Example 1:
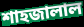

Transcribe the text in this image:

শাহজালাল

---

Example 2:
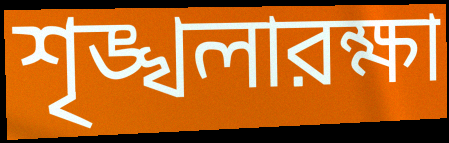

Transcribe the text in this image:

শৃঙ্খলারক্ষা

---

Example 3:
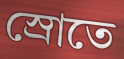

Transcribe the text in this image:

স্রোতে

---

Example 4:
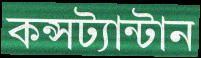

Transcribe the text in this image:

কন্সট্যান্টান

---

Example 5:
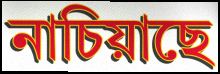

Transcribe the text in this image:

নাচিয়াছে